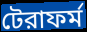
টেরাফর্ম